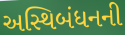
અસ્થિબંધનની